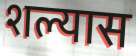
शल्यास